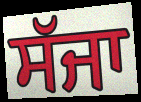
ਸੱਜਾ